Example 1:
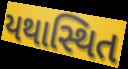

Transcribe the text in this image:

યથાસ્થિત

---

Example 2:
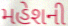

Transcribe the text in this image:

મહેશની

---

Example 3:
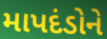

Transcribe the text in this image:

માપદંડોને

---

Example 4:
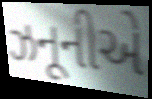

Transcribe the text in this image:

ઝનૂનીએ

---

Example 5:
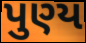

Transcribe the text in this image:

પુણ્ય